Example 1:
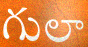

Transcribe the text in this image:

గులా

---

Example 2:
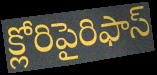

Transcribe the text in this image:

క్లోరిపైరిఫాస్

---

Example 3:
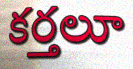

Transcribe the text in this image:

కర్తలూ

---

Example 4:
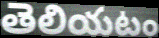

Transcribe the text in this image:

తెలియటం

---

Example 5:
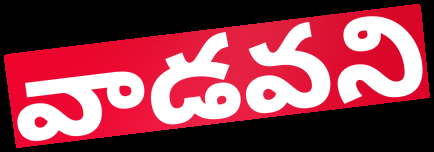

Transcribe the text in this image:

వాడవని